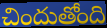
చిందుతోంది